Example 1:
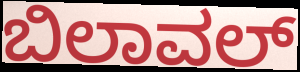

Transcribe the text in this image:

ಬಿಲಾವಲ್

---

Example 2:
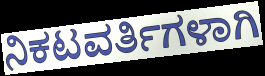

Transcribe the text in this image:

ನಿಕಟವರ್ತಿಗಳಾಗಿ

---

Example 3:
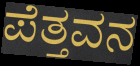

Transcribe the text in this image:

ಪೆತ್ತವನ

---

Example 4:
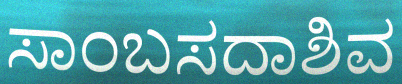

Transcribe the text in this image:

ಸಾಂಬಸದಾಶಿವ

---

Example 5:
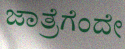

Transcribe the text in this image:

ಜಾತ್ರೆಗೆಂದೇ